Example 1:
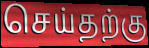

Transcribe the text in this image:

செய்தற்கு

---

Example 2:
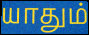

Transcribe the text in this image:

யாதும்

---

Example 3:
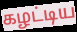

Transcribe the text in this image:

கழட்டிய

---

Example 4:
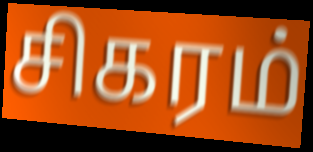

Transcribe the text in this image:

சிகரம்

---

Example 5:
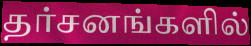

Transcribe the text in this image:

தர்சனங்களில்